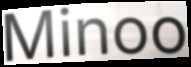
Minoo